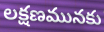
లక్షణమునకు